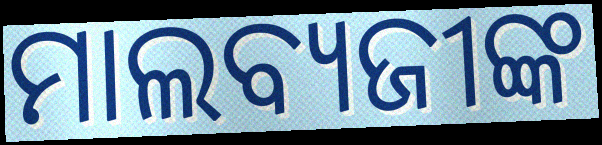
ମାଲବ୍ୟଜୀଙ୍କ